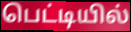
பெட்டியில்